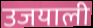
उजयाली